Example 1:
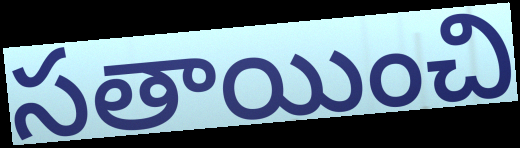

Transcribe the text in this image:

సతాయించి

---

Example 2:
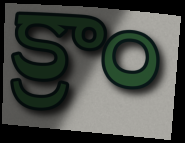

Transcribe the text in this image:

క్రాం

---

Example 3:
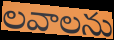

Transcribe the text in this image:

లవాలను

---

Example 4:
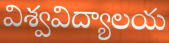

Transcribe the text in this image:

విశ్వవిద్యాలయ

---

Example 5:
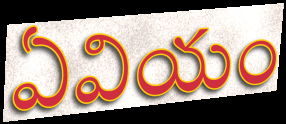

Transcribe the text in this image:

ఏవియం